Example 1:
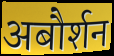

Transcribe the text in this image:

अबौर्शन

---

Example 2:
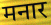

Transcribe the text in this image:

मनार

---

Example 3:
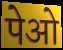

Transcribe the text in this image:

पेओ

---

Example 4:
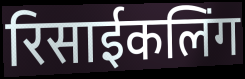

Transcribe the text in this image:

रिसाईकलिंग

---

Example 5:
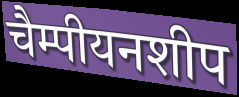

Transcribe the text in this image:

चैम्पीयनशीप